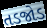
તડજોડ